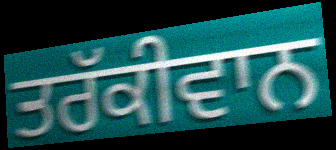
ਤਰੱਕੀਵਾਨ